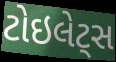
ટોઇલેટ્સ